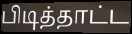
பிடித்தாட்ட